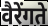
वैरेंगते